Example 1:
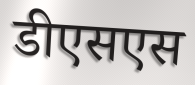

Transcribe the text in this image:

डीएसएस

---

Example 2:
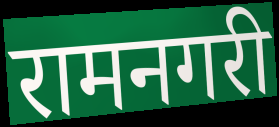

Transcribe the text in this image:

रामनगरी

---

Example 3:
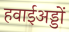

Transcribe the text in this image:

हवाईअड्डों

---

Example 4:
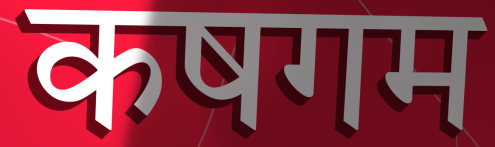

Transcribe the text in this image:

कषगम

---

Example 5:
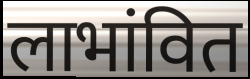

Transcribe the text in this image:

लाभांवित